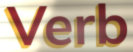
Verb